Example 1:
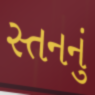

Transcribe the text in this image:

સ્તનનું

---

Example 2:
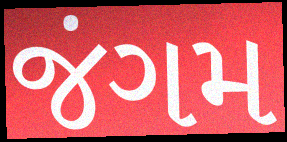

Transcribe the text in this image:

જંગમ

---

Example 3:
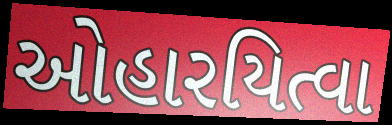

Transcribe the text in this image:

ઓહારયિત્વા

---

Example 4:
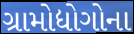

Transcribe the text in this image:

ગ્રામોદ્યોગોના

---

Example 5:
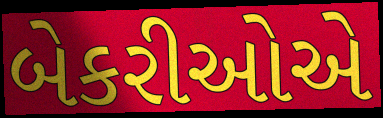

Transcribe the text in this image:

બેકરીઓએ